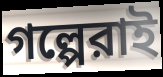
গল্পেরাই